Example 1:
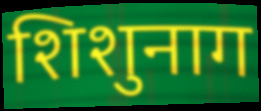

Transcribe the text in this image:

शिशुनाग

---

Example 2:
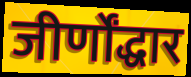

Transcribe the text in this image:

जीर्णोंद्धार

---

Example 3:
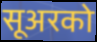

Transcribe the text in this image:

सूअरको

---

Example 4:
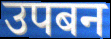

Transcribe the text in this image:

उपबन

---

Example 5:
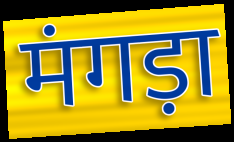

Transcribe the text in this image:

मंगड़ा